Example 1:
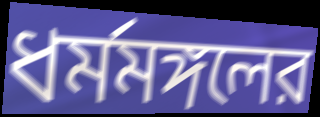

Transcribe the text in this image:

ধর্মমঙ্গলের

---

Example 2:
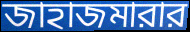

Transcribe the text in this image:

জাহাজমারার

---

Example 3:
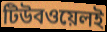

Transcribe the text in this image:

টিউবওয়েলই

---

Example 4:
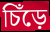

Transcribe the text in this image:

চিঁড়ে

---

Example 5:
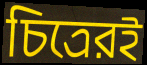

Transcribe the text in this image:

চিত্রেরই